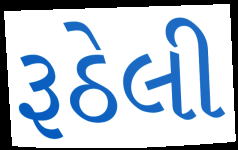
રૂઠેલી